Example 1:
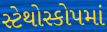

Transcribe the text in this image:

સ્ટેથોસ્કોપમાં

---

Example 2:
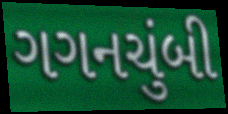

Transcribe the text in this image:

ગગનચુંબી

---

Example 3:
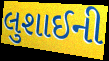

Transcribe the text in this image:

લુશાઈની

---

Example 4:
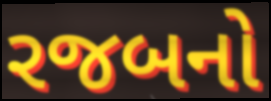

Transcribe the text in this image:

રજબનો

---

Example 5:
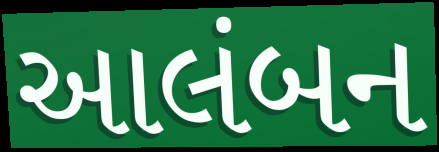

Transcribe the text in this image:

આલંબન